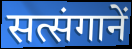
सत्संगानें